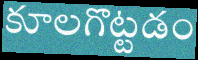
కూలగొట్టడం